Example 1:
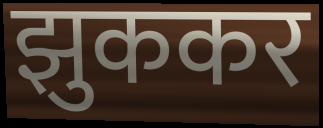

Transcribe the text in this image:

झुककर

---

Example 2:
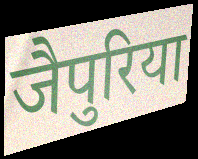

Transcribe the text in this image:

जैपुरिया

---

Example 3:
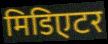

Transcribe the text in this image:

मिडिएटर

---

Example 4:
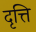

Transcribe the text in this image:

दृत्ति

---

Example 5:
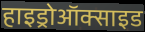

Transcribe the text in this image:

हाइड्रोऑक्साइड